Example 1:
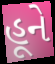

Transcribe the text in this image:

હૂને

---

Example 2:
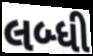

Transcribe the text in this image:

લબ્ધી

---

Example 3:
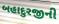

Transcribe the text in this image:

બહાદુરજીની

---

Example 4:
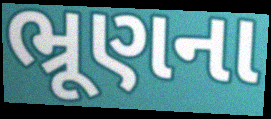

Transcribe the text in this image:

ભ્રૂણના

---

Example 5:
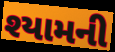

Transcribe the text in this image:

શ્યામની